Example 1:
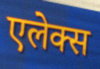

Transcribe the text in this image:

एलेक्स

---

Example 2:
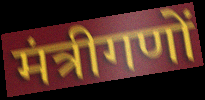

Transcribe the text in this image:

मंत्रीगणों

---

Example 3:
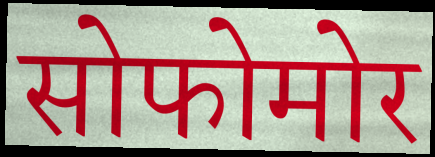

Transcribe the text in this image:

सोफोमोर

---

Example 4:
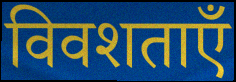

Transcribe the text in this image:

विवशताएँ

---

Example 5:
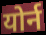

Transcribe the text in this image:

योर्न